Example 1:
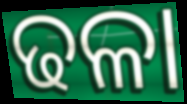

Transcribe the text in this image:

ଢଳା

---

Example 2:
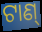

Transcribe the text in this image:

ଟାଣ୍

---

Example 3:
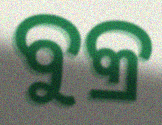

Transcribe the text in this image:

ବୁକ୍ର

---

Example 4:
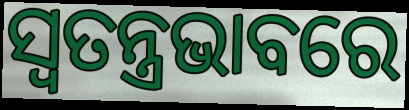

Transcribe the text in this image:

ସ୍ଵତନ୍ତ୍ରଭାବରେ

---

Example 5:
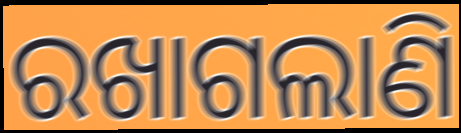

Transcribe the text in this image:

ରଖାଗଲାଣି